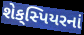
શેક્‌સ્પિયરનાં